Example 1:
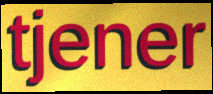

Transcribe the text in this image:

tjener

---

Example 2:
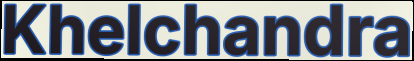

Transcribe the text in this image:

Khelchandra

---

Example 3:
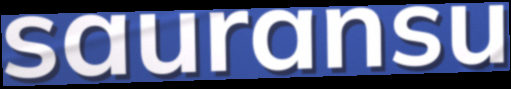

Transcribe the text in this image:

sauransu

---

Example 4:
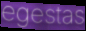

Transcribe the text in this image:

egestas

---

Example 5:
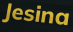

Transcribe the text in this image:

Jesina